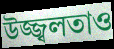
উজ্জ্বলতাও